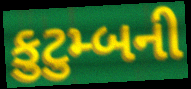
કુટુમ્બની